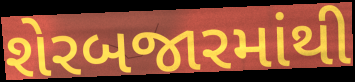
શેરબજારમાંથી